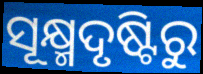
ସୂକ୍ଷ୍ମଦୃଷ୍ଟିରୁ